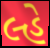
લ્હે